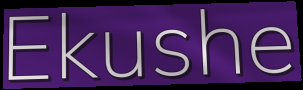
Ekushe